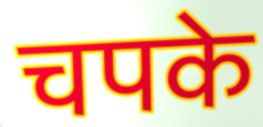
चपके